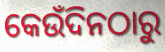
କେଉଁଦିନଠାରୁ